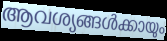
ആവശ്യങ്ങൾക്കായും